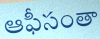
ఆఫీసంతా